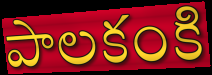
పాలకంకి